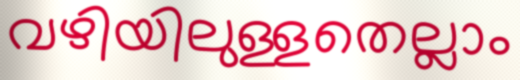
വഴിയിലുള്ളതെല്ലാം